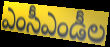
ఎంసీఎండీల